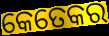
କେତେକର